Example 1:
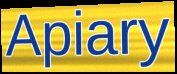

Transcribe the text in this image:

Apiary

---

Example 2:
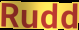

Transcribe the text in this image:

Rudd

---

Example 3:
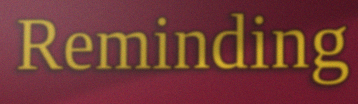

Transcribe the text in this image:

Reminding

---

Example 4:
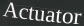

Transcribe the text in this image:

Actuator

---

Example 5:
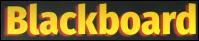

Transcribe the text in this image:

Blackboard